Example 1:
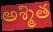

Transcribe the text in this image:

అశ్మిత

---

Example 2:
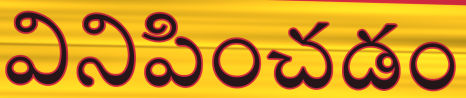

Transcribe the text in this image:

వినిపించడం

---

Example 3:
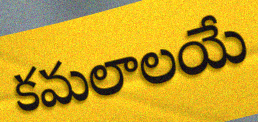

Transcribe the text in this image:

కమలాలయే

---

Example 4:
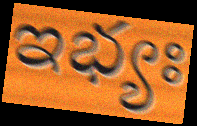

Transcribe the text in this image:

ఇభ్యః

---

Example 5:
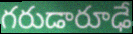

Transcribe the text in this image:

గరుడారూఢే